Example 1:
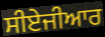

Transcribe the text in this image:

ਸੀਏਜੀਆਰ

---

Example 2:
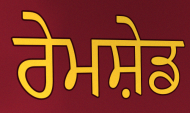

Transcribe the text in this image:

ਰੇਮਸ਼ੇਡ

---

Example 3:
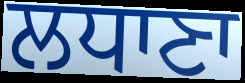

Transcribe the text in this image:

ਲਧਾਣਾ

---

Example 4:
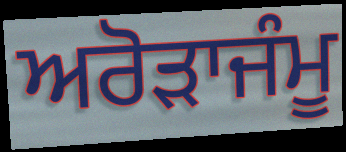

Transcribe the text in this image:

ਅਰੋੜਾਜੰਮੂ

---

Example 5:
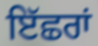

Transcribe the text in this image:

ਇੱਛਰਾਂ